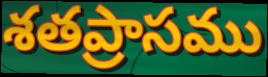
శతప్రాసము